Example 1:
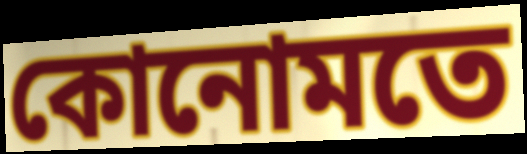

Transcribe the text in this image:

কোনোমতে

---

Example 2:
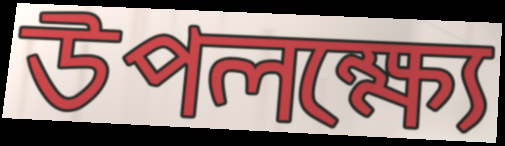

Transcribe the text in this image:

উপলক্ষ্যে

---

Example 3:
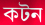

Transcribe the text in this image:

কটন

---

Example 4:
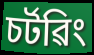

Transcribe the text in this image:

চৰ্টৱিং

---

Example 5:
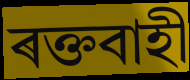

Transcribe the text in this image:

ৰক্তবাহী